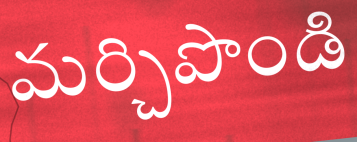
మర్చిపొండి